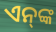
ଏନ୍‌ଙ୍କ